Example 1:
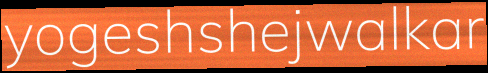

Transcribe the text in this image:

yogeshshejwalkar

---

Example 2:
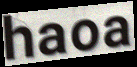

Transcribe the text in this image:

haoa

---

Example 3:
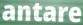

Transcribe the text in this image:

antare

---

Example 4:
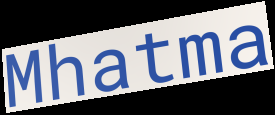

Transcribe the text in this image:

Mhatma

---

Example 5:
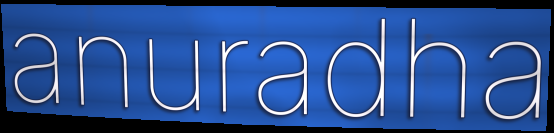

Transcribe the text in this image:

anuradha